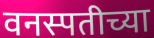
वनस्पतीच्या